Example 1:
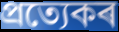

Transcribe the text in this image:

প্ৰত্যেকৰ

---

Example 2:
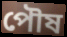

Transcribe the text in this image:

পৌষ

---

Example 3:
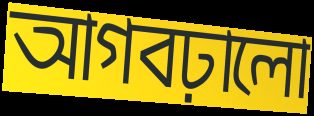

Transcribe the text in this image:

আগবঢ়ালো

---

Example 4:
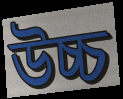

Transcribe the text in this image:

উচ্চ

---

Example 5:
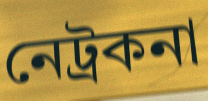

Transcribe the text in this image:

নেট্ৰকনা